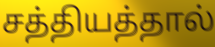
சத்தியத்தால்